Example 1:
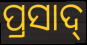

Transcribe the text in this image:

ପ୍ରସାଦ୍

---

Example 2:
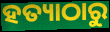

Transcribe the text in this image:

ହତ୍ୟାଠାରୁ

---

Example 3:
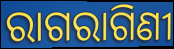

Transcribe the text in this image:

ରାଗରାଗିଣୀ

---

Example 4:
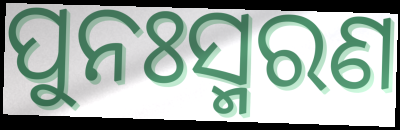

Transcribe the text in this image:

ପୁନଃସ୍ମରଣ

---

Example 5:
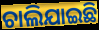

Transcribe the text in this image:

ଚାଲିଯାଇଛି